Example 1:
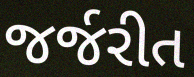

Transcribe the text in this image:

જર્જરીત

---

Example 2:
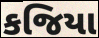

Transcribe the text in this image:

કજિયા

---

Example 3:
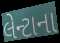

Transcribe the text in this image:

લેન્ટાના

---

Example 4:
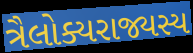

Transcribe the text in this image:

ત્રૈલોક્યરાજ્યસ્ય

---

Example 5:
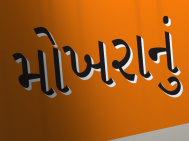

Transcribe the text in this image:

મોખરાનું